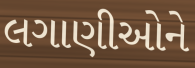
લગાણીઓને